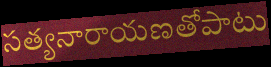
సత్యనారాయణతోపాటు